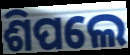
ଶିପଲେ